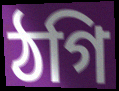
ঠগি